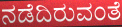
ನಡೆದಿರುವಂತೆ